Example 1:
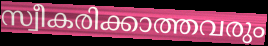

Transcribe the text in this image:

സ്വീകരിക്കാത്തവരും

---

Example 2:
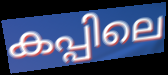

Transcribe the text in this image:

കപ്പിലെ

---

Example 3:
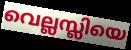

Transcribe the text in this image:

വെല്ലസ്ലിയെ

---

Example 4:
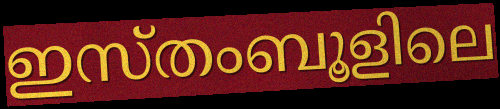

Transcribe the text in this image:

ഇസ്തംബൂളിലെ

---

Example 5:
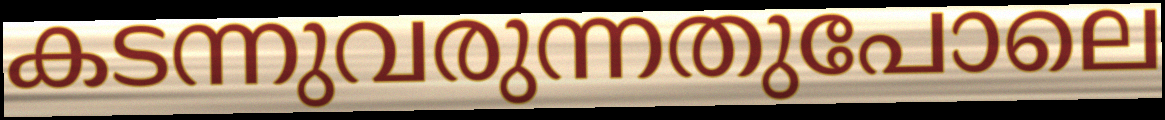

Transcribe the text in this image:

കടന്നുവരുന്നതുപോലെ